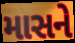
માસને